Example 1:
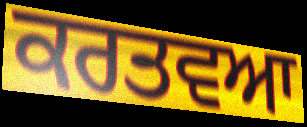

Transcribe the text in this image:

ਕਰਤਵਆ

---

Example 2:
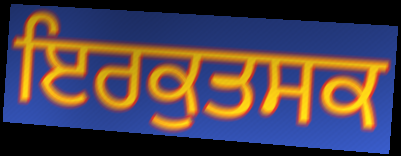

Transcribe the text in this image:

ਇਰਕੁਤਸਕ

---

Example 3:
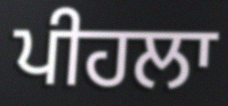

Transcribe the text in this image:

ਪੀਹਲਾ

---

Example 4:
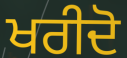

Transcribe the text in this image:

ਖਰੀਦੋ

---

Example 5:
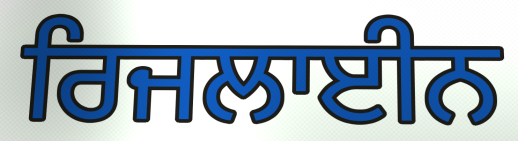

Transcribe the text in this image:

ਰਿਜਲਾਈਨ